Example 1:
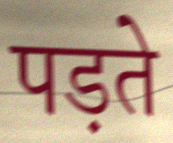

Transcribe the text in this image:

पड़ते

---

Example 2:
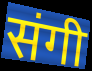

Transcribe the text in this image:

संगी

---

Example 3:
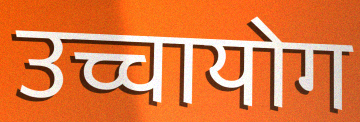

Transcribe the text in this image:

उच्चायोग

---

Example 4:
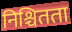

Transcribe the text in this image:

निश्चितता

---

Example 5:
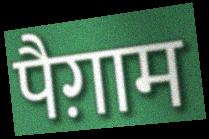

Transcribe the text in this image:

पैग़ाम